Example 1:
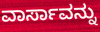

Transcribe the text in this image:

ವಾರ್ಸಾವನ್ನು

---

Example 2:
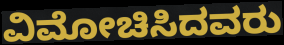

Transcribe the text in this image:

ವಿಮೋಚಿಸಿದವರು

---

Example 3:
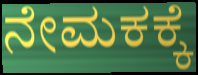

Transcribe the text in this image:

ನೇಮಕಕ್ಕೆ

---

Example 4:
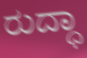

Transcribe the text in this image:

ರುದ್ಧಾ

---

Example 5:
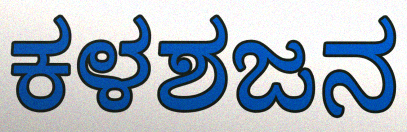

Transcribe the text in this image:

ಕಳಶಜನ